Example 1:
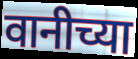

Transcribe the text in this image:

वानीच्या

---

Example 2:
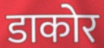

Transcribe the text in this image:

डाकोर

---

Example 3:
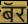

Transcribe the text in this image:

बॅर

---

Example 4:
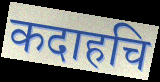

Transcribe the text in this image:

कदाहचि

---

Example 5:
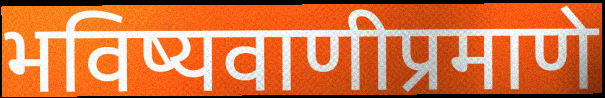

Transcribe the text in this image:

भविष्यवाणीप्रमाणे